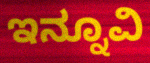
ಇನ್ನೂವಿ